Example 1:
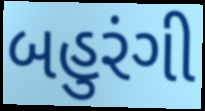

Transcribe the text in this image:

બહુરંગી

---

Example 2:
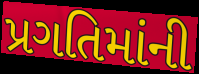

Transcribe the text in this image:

પ્રગતિમાંની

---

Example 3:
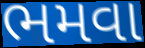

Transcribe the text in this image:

ભમવા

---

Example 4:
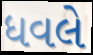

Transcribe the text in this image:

ધવલે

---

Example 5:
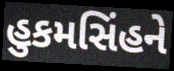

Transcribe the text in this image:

હુકમસિંહને